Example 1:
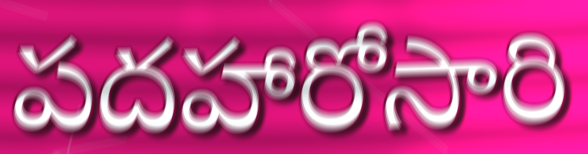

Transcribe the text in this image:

పదహారోసారి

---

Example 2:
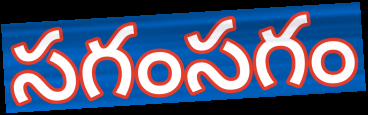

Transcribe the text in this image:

సగంసగం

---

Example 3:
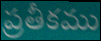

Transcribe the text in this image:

ప్రతీకము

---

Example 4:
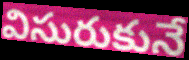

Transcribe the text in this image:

విసురుకునే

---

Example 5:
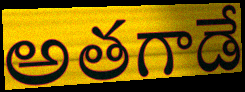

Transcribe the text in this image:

అతగాడే